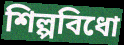
শিল্পবিধো